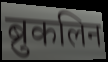
ब्रुकलिन